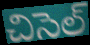
చిసెల్